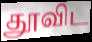
தூவிட